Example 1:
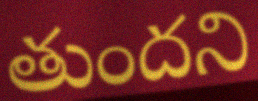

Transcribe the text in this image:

తుందని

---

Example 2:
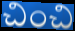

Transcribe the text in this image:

చించి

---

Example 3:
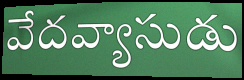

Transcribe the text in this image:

వేదవ్యాసుడు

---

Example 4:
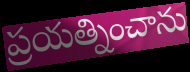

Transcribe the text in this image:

ప్రయత్నించాను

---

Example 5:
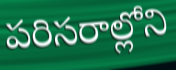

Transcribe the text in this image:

పరిసరాల్లోని